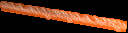
കൈക്കരുത്തുകൊണ്ടും